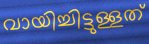
വായിച്ചിട്ടുള്ളത്